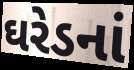
ઘરેડનાં